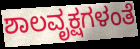
ಶಾಲವೃಕ್ಷಗಳಂತೆ